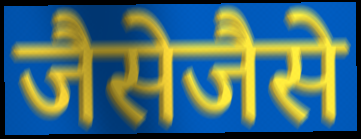
जैसेजैसे